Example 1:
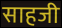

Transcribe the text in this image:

साहजी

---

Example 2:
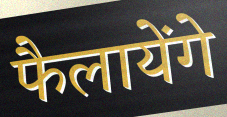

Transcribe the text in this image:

फैलायेंगे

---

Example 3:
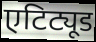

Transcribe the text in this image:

एटिट्यूड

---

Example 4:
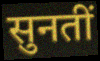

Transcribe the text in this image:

सुनतीं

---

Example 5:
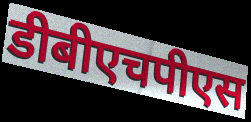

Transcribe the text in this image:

डीबीएचपीएस